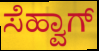
ಸೆಹ್ವಾಗ್